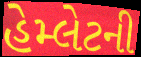
હેમ્લેટની